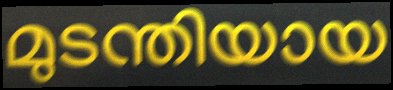
മുടന്തിയായ